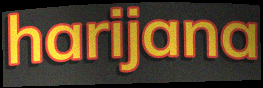
harijana